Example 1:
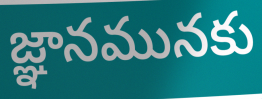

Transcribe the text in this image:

జ్ఞానమునకు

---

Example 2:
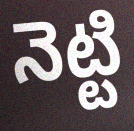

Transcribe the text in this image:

నెట్టి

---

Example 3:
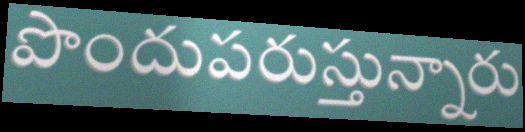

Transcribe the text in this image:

పొందుపరుస్తున్నారు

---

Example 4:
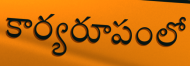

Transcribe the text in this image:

కార్యరూపంలో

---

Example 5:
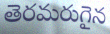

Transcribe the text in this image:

తెరమరుగైన